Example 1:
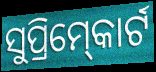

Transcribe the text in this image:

ସୁପ୍ରିମ୍‍କୋର୍ଟ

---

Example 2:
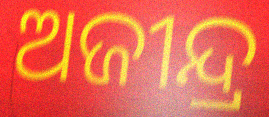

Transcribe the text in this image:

ଅଜୀନ୍ଦ୍ର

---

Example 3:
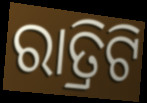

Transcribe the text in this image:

ରାତ୍ରିଟି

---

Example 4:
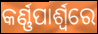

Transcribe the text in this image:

କର୍ଣ୍ଣପାର୍ଶ୍ୱରେ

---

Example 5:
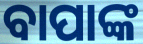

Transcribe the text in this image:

ବାପାଙ୍କ